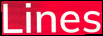
Lines